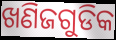
ଖଣିଜଗୁଡିକ